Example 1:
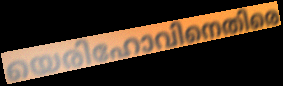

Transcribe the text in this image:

യെരിഹോവിനെതിരെ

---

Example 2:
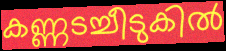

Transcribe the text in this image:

കണ്ണടച്ചീടുകിൽ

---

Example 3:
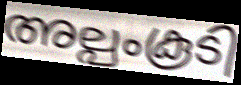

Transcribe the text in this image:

അല്പംകൂടി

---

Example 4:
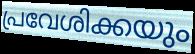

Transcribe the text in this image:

പ്രവേശിക്കയും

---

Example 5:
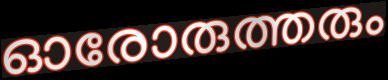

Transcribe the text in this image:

ഓരോരുത്തരും